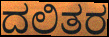
ದಲಿತರ